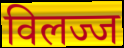
विलज्ज